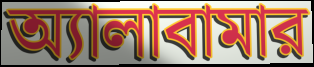
অ্যালাবামার